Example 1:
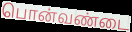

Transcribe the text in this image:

பொன்வண்டை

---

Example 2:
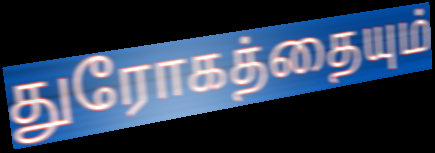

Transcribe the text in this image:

துரோகத்தையும்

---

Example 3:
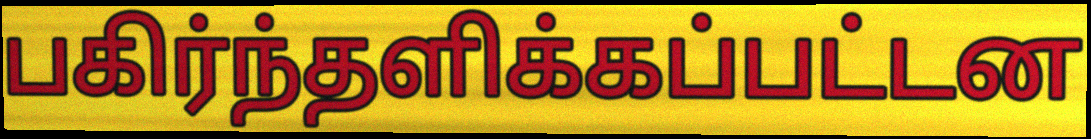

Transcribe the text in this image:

பகிர்ந்தளிக்கப்பட்டன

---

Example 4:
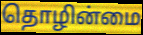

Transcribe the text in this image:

தொழின்மை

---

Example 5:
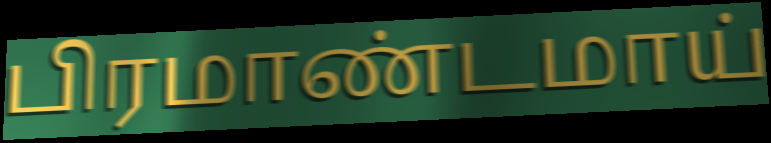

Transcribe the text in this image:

பிரமாண்டமாய்